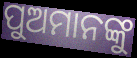
ପୁଅମାନଙ୍କୁ